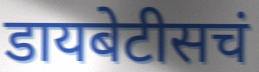
डायबेटीसचं